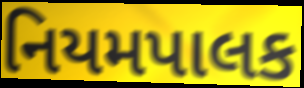
નિયમપાલક